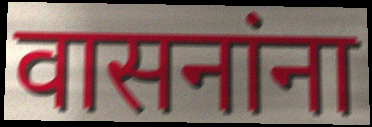
वासनांना